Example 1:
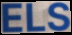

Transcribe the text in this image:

ELS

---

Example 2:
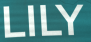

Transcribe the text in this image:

LILY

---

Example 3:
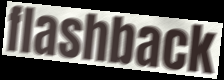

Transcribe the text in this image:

flashback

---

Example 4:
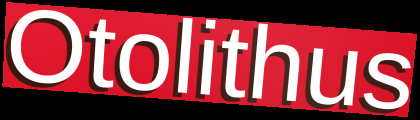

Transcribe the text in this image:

Otolithus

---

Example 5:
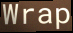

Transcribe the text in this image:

Wrap